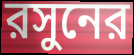
রসুনের